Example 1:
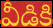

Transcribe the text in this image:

వీడికి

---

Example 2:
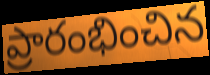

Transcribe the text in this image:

ప్రారంభించిన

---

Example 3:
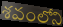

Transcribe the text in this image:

శవంలోని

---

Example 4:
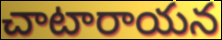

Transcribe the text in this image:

చాటారాయన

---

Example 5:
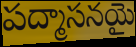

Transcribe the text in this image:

పద్మాసనయై